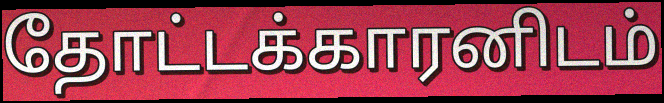
தோட்டக்காரனிடம்